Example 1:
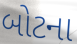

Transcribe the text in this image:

બોટના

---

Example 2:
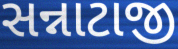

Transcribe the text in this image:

સન્નાટાજી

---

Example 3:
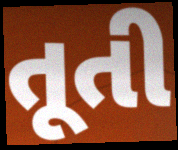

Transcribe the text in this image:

તૂતી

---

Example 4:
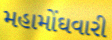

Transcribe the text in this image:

મહામોંઘવારી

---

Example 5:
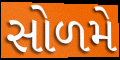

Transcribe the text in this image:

સોળમે